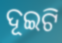
ଦୂଇଟି